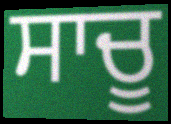
ਸਾਚੂ